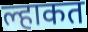
ल्हाकत